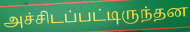
அச்சிடப்பட்டிருந்தன